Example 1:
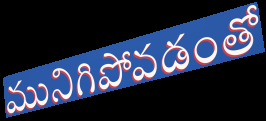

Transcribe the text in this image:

మునిగిపోవడంతో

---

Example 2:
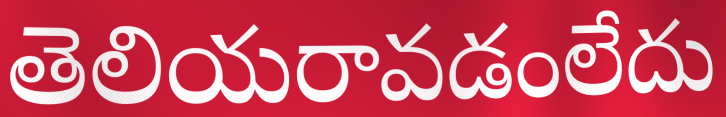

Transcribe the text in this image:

తెలియరావడంలేదు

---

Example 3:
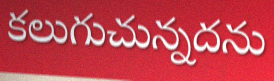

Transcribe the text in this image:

కలుగుచున్నదను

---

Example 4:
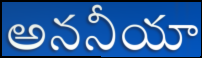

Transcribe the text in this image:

అననీయా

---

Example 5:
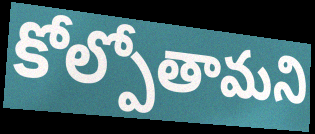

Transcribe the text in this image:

కోల్పోతామని